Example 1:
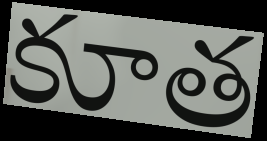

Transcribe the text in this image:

కూత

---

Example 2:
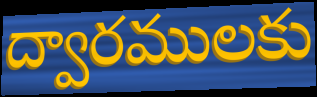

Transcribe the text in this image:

ద్వారములకు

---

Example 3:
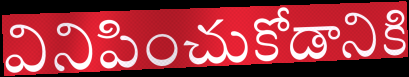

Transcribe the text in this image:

వినిపించుకోడానికి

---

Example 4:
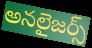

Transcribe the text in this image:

అనలైజర్స్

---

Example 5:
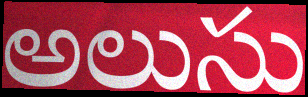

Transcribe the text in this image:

అలుసు